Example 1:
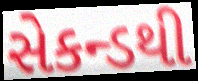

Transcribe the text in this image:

સેકન્ડથી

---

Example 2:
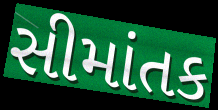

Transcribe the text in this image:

સીમાંતક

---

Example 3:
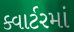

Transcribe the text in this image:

ક્વાર્ટરમાં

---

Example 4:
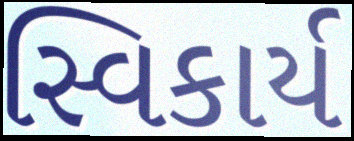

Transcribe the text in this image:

સ્વિકાર્ય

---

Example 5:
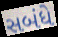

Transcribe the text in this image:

સબંધે